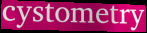
cystometry